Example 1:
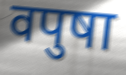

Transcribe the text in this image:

वपुषा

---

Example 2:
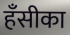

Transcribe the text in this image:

हँसीका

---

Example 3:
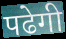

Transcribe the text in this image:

पढेगी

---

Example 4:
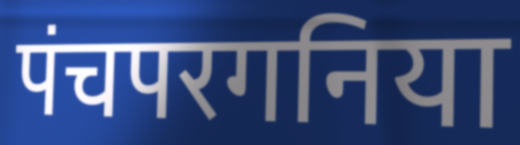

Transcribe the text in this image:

पंचपरगनिया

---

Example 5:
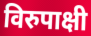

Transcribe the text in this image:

विरुपाक्षी